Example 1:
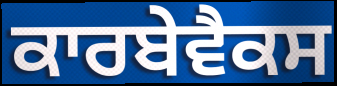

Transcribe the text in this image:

ਕਾਰਬੇਵੈਕਸ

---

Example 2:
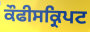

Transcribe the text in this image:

ਕੌਫੀਸਕ੍ਰਿਪਟ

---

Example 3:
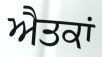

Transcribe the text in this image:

ਐਤਕਾਂ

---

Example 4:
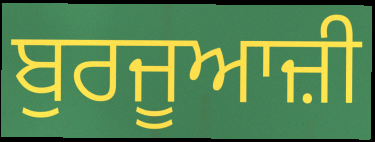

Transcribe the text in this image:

ਬੁਰਜੂਆਜ਼ੀ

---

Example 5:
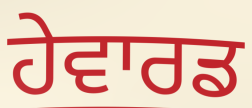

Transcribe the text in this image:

ਹੇਵਾਰਡ